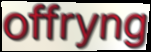
offryng